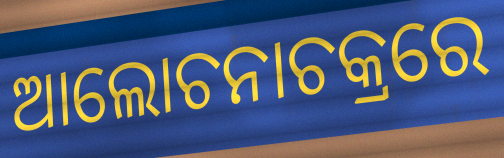
ଆଲୋଚନାଚକ୍ରରେ